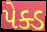
પેક્ડ